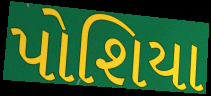
પોશિયા